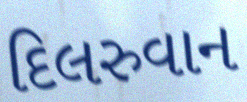
દિલરુવાન